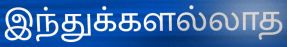
இந்துக்களல்லாத